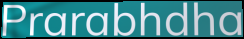
Prarabhdha